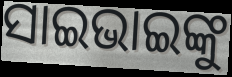
ସାଇଭାଇଙ୍କୁ